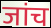
जांच